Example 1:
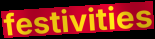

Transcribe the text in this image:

festivities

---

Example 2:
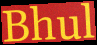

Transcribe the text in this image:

Bhul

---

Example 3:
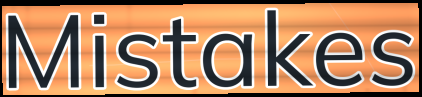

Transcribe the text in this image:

Mistakes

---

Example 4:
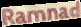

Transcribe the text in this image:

Ramnad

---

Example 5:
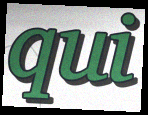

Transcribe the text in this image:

qui